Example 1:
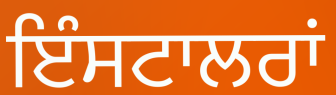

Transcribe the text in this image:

ਇੰਸਟਾਲਰਾਂ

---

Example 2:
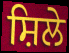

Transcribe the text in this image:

ਸ਼ਿਲੇ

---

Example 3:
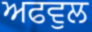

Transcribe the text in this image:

ਅਫਵੁਲ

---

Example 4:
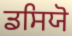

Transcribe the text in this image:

ਡਸਿਯੋ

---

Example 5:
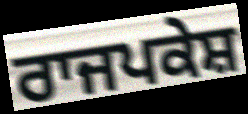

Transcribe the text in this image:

ਰਾਜਪਕੇਸ਼